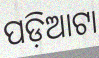
ପଡ଼ିଆଟା